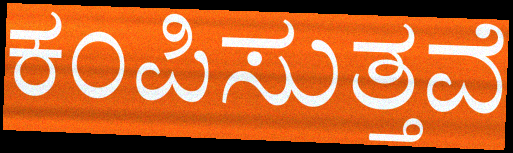
ಕಂಪಿಸುತ್ತವೆ